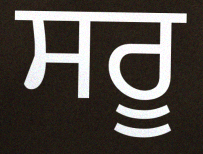
ਸਰੂ